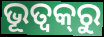
ଭୂତ୍ଵକ୍‌ରୁ